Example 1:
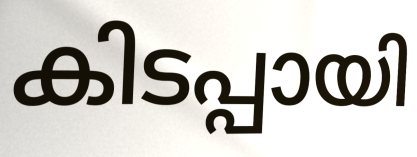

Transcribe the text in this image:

കിടപ്പായി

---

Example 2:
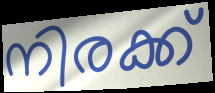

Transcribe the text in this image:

നിരക്ക്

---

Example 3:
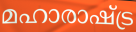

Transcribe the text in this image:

മഹാരാഷ്ട്ര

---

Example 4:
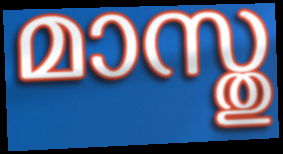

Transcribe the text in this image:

മാസ്തു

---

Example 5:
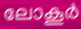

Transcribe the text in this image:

ലോകൂർ